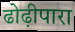
ढोढ़ीपारा